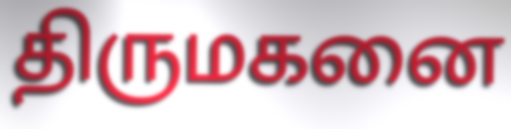
திருமகனை